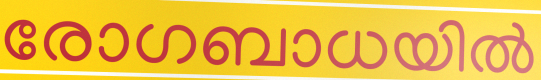
രോഗബാധയിൽ